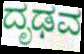
ದೃಢವ